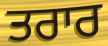
ਤਰਾਰ